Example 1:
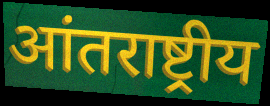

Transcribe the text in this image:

आंतराष्ट्रीय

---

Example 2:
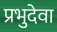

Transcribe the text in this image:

प्रभुदेवा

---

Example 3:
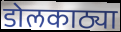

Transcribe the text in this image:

डोलकाठ्या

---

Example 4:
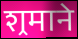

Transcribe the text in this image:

श्रमाने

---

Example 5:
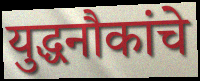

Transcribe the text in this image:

युद्धनौकांचे